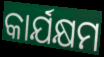
କାର୍ଯକ୍ଷମ